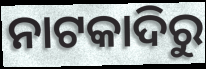
ନାଟକାଦିରୁ